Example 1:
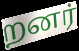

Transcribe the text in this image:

றனர்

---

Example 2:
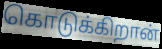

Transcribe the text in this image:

கொடுக்கிறான்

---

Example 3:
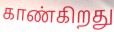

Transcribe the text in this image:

காண்கிறது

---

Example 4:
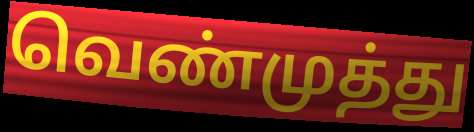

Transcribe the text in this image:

வெண்முத்து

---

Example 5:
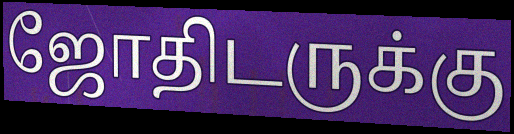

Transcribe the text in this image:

ஜோதிடருக்கு